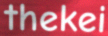
thekei